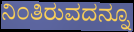
ನಿಂತಿರುವದನ್ನೂ